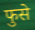
फुसे